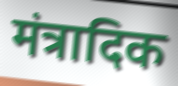
मंत्रादिक